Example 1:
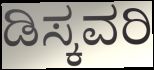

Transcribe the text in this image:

ಡಿಸ್ಕವರಿ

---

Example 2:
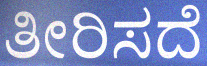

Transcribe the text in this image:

ತೀರಿಸದೆ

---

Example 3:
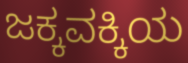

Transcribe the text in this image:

ಜಕ್ಕವಕ್ಕಿಯ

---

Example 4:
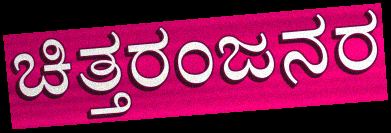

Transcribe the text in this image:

ಚಿತ್ತರಂಜನರ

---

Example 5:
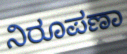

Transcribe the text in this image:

ನಿರೂಪಣಾ